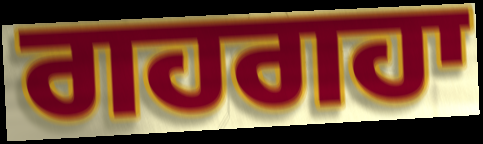
ਗਹਗਹਾ